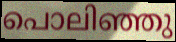
പൊലിഞ്ഞു